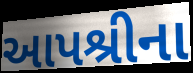
આપશ્રીના